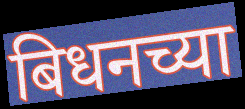
बिधनच्या